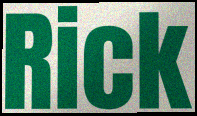
Rick